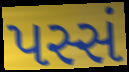
પસ્સં